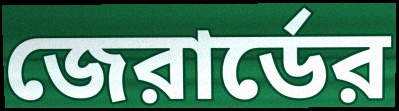
জেরার্ডের